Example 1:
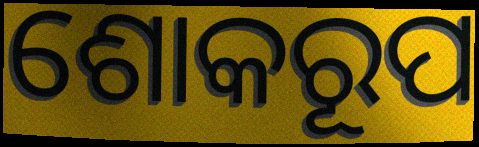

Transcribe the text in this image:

ଶୋକରୂପ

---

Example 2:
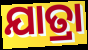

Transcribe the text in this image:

ଯାତ୍ରା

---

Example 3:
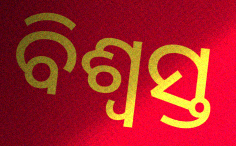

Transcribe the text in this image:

ବିଶ୍ୱସ୍ତ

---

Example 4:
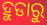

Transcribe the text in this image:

ହୁଡାରୁ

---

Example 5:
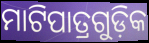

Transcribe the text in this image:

ମାଟିପାତ୍ରଗୁଡ଼ିକ